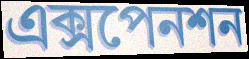
এক্সপেনশন